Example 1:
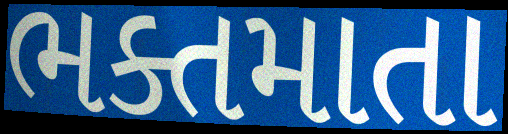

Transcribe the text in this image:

ભક્તમાતા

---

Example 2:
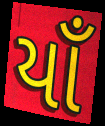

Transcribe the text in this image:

યાઁ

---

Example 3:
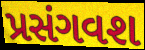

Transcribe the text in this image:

પ્રસંગવશ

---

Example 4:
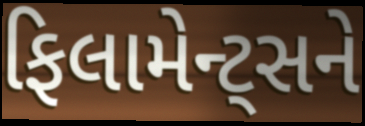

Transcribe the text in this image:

ફિલામેન્ટ્સને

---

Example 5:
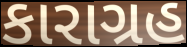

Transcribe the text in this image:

કારાગ્રહ